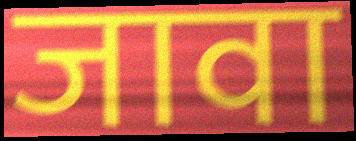
जावा